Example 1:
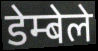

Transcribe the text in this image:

डेम्बेले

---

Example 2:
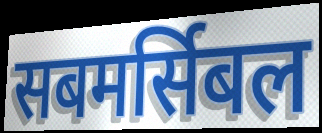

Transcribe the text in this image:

सबमर्सिबल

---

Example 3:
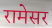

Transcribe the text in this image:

रामेसर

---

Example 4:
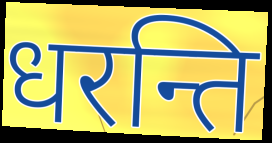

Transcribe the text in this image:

धरन्ति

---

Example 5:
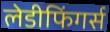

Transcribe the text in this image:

लेडीफिंगर्स